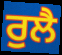
ਰੁਲੈ